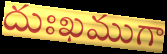
దుఃఖముగా